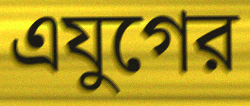
এযুগের